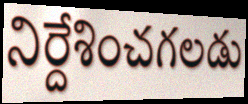
నిర్దేశించగలడు